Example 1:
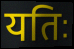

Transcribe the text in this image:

यतिः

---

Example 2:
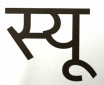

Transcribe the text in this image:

स्यू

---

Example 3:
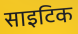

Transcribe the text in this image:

साइटिक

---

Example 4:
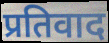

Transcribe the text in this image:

प्रतिवाद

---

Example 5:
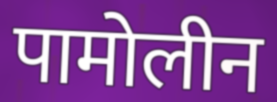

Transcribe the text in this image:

पामोलीन